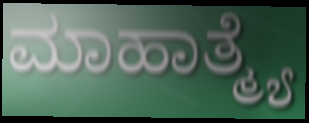
ಮಾಹಾತ್ಮ್ಯೆ